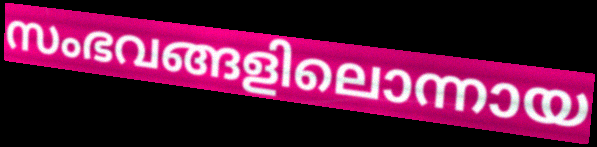
സംഭവങ്ങളിലൊന്നായ